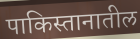
पाकिस्तानातील